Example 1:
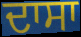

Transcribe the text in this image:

ਦਾਸਾ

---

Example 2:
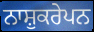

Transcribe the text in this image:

ਨਾਸ਼ੁਕਰੇਪਨ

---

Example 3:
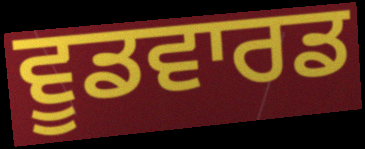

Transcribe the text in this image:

ਵੂਡਵਾਰਡ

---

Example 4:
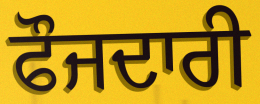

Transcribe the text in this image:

ਫੌਜਦਾਰੀ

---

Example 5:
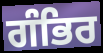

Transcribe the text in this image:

ਗੰਭਿਰ